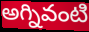
అగ్నివంటి